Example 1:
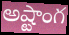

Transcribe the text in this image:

అష్టాంగ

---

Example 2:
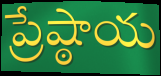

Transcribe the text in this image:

ప్రేష్ఠాయ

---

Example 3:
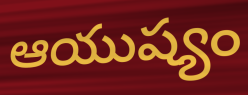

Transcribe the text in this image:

ఆయుష్యం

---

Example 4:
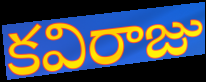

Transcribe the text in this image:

కవిరాజు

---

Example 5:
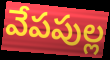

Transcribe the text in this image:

వేపపుల్ల